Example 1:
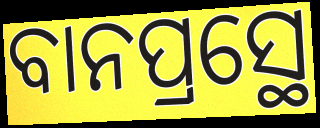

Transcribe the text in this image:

ବାନପ୍ରସ୍ଥେ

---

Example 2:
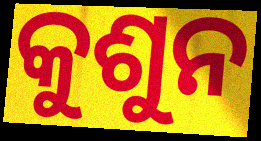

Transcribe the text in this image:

କୁଶୁନ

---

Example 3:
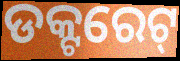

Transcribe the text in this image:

ଡକ୍ଟରେଟ୍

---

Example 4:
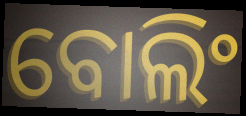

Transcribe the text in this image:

ବୋଲିଂ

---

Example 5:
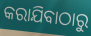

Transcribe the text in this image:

କରାଯିବାଠାରୁ